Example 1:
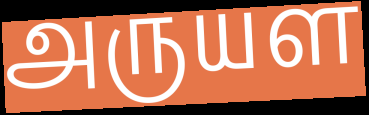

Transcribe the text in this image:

அருயள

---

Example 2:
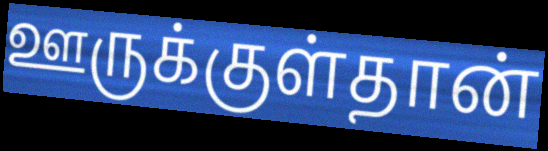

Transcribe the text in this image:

ஊருக்குள்தான்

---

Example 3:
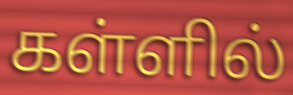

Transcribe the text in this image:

கள்ளில்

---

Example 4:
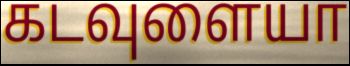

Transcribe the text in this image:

கடவுளையா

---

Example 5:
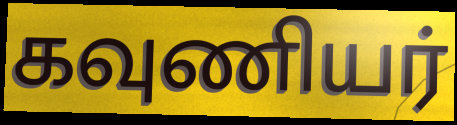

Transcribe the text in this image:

கவுணியர்